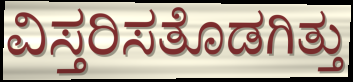
ವಿಸ್ತರಿಸತೊಡಗಿತ್ತು